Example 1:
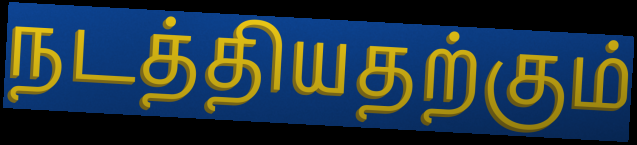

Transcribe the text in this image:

நடத்தியதற்கும்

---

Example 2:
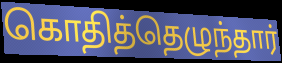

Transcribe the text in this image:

கொதித்தெழுந்தார்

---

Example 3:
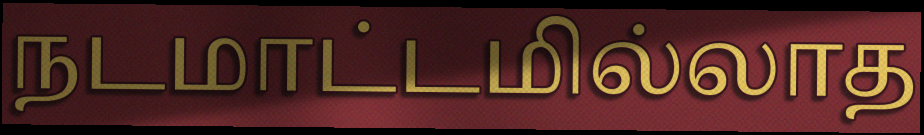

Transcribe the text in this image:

நடமாட்டமில்லாத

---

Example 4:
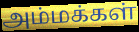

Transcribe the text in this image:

அம்மக்கள்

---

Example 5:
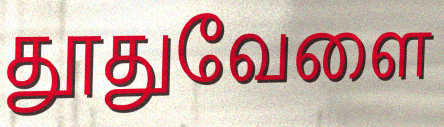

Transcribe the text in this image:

தூதுவேளை